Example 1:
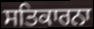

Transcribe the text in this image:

ਸਤਿਕਾਰਨਾ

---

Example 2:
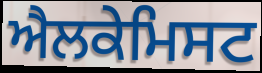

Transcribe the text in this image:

ਐਲਕੇਮਿਸਟ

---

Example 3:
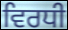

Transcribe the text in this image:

ਵਿਰਧੀ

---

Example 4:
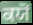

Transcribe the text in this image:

ਕਯੋਂ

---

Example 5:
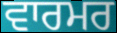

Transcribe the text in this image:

ਵਾਰਮਰ